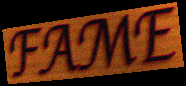
FAME